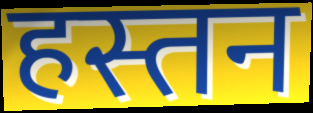
हस्तन